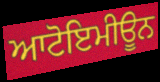
ਆਟੋਇਮੀਊਨ